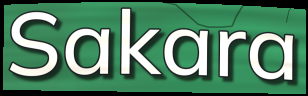
Sakara